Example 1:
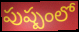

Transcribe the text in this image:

పుష్పంలో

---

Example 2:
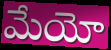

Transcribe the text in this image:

మేయో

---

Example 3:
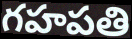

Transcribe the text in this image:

గహపతి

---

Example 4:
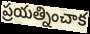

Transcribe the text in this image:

ప్రయత్నించాక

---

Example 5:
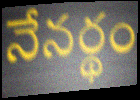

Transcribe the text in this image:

నేనర్థం